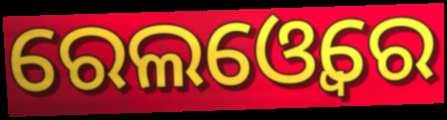
ରେଲଓ୍ୱେରେ